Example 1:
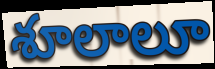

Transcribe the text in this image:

శూలాలూ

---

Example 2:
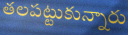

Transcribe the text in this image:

తలపట్టుకున్నారు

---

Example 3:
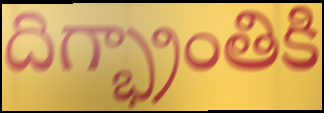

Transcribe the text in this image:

దిగ్భ్రాంతికి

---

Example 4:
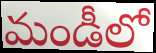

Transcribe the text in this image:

మండీలో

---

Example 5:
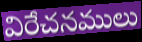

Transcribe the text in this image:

విరేచనములు